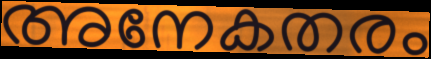
അനേകതരം